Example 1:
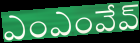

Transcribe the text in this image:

ఎంఎంవేవ్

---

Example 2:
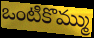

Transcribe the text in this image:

ఒంటికొమ్ము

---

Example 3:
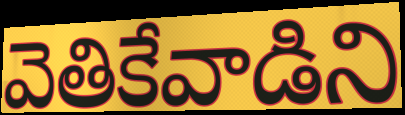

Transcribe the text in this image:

వెతికేవాడిని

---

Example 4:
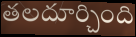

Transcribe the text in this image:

తలదూర్చింది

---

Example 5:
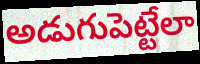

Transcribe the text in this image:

అడుగుపెట్టేలా